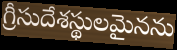
గ్రీసుదేశస్థులమైనను